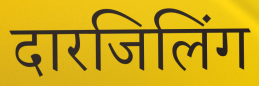
दारजिलिंग